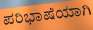
ಪರಿಭಾಷೆಯಾಗಿ